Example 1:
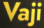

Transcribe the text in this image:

Vaji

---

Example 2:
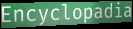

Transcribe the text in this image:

Encyclopadia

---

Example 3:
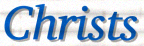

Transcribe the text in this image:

Christs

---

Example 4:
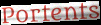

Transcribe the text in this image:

Portents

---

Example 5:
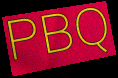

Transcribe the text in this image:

PBQ